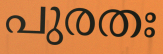
പുരതഃ